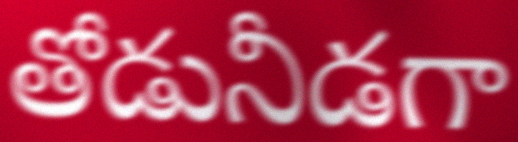
తోడునీడగా